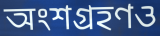
অংশগ্রহণও